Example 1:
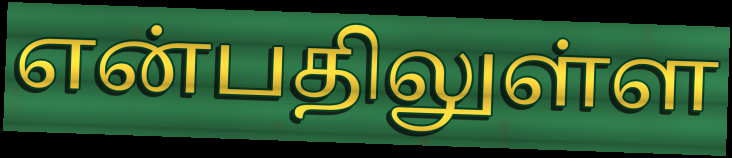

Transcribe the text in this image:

என்பதிலுள்ள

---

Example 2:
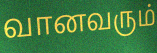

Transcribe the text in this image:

வானவரும்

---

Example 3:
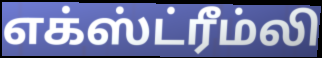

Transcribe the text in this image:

எக்ஸ்ட்ரீம்லி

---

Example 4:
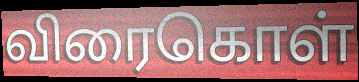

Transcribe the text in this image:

விரைகொள்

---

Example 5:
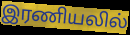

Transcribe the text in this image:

இரணியலில்